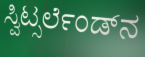
ಸ್ವಿಟ್ಸರ್ಲೆಂಡ್‌ನ